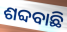
ଶବ୍ଦବାଛି